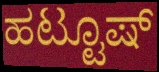
ಹಟ್ಟೂಷ್